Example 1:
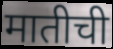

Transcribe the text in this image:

मातीची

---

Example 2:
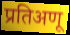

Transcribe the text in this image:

प्रतिअणू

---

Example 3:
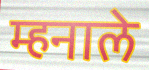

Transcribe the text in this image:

म्हनाले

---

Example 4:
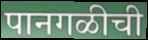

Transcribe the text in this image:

पानगळीची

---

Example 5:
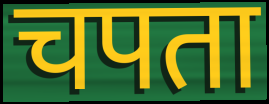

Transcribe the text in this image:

चपता